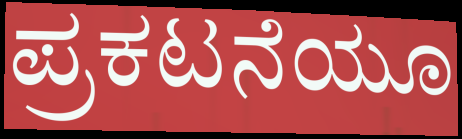
ಪ್ರಕಟನೆಯೂ